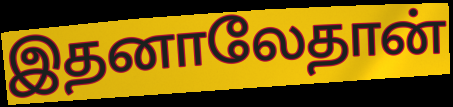
இதனாலேதான்